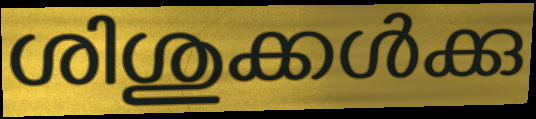
ശിശുക്കൾക്കു